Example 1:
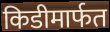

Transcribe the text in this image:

किडीमार्फत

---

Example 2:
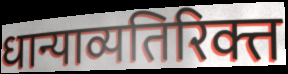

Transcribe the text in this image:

धान्याव्यतिरिक्त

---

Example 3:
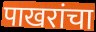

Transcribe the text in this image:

पाखरांचा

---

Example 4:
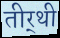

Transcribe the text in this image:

तीर्थी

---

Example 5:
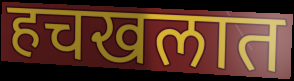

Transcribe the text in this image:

हचखलात